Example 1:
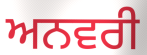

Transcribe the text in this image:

ਅਨਵਰੀ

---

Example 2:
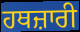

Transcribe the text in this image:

ਹਥਜ਼ਾਰੀ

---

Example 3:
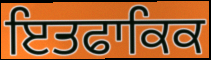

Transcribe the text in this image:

ਇਤਫਾਕਿਕ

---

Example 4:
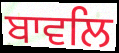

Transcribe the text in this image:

ਬਾਵਲਿ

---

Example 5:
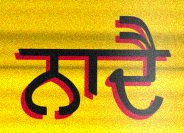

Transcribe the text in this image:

ਨਾਦੈ